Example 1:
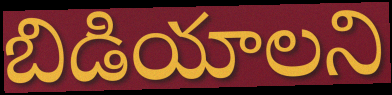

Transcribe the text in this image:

బిడియాలని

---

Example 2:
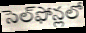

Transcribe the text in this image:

సెల్‌ఫోన్లలో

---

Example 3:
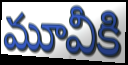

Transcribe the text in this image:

మూవీకి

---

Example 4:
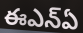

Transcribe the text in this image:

ఈఎన్ఏ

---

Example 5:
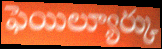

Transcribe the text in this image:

ఫెయిల్యూర్కు